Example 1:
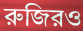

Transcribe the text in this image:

রুজিরও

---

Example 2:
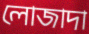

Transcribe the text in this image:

লোজাদা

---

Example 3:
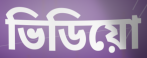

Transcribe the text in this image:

ভিডিয়ো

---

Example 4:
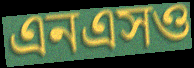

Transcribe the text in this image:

এনএসও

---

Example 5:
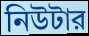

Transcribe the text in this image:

নিউটার